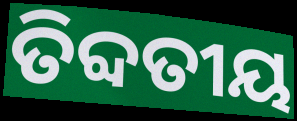
ତିବ୍ଦତୀୟ